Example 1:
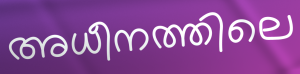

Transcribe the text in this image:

അധീനത്തിലെ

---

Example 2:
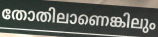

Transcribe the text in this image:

തോതിലാണെങ്കിലും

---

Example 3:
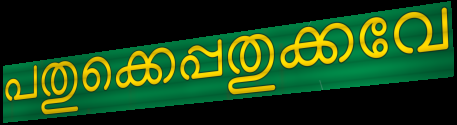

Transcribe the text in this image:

പതുക്കെപ്പതുക്കവേ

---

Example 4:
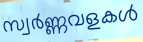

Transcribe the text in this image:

സ്വർണ്ണവളകൾ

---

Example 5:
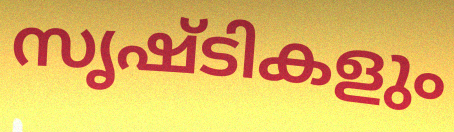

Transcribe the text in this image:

സൃഷ്ടികളും